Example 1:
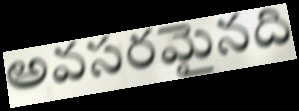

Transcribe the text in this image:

అవసరమైనది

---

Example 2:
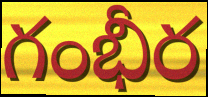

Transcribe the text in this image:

గంభీర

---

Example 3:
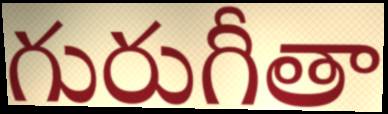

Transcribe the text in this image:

గురుగీతా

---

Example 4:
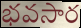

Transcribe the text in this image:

భవసార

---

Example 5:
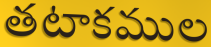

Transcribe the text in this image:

తటాకముల